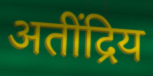
अतींद्रिय